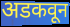
अडकवून